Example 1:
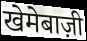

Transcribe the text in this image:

खेमेबाज़ी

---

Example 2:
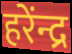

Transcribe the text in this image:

हरेंन्द्र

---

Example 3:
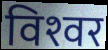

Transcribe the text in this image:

विश्वर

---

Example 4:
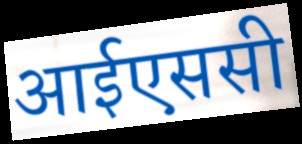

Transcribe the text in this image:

आईएससी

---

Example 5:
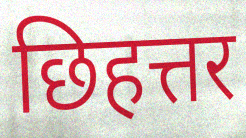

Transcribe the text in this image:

छिहत्तर